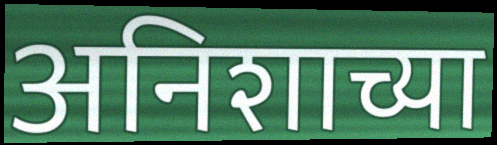
अनिशाच्या